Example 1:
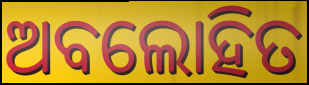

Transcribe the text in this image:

ଅବଲୋହିତ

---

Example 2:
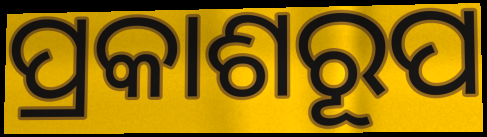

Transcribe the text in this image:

ପ୍ରକାଶରୂପ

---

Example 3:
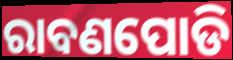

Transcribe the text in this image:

ରାବଣପୋଡି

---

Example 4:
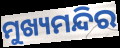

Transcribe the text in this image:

ମୁଖ୍ୟମନ୍ଦିର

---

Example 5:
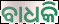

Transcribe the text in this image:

ବାଧକି